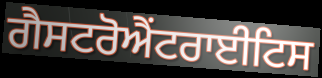
ਗੈਸਟਰੋਐਂਟਰਾਈਟਿਸ